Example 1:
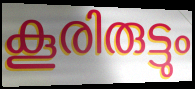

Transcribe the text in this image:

കൂരിരുട്ടും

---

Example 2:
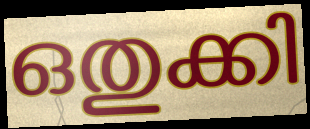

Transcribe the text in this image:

ഒതുക്കി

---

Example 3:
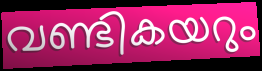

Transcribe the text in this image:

വണ്ടികയറും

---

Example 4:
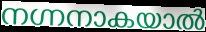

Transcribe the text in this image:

നഗ്നനാകയാൽ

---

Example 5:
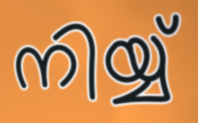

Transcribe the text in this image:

നിയ്യ്